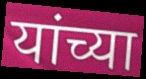
यांच्या